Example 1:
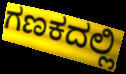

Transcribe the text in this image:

ಗಣಕದಲ್ಲಿ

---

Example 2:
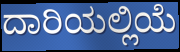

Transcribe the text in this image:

ದಾರಿಯಲ್ಲಿಯೆ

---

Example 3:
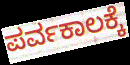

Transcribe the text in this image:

ಪರ್ವಕಾಲಕ್ಕೆ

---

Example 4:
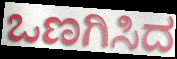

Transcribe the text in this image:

ಒಣಗಿಸಿದ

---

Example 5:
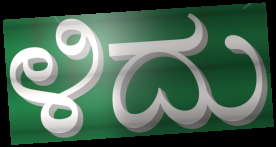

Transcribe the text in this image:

ಳಿದು